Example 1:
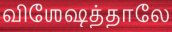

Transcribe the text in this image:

விஶேஷத்தாலே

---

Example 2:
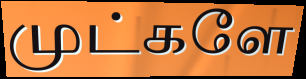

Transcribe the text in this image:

முட்களே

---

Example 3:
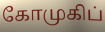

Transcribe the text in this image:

கோமுகிப்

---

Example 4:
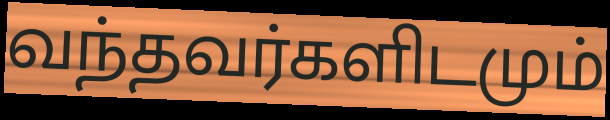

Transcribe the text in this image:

வந்தவர்களிடமும்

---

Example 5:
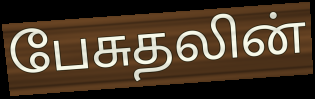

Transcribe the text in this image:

பேசுதலின்